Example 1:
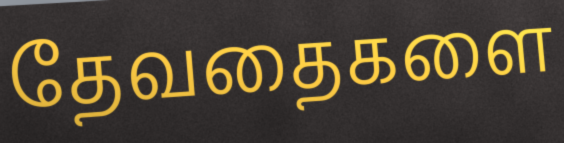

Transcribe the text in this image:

தேவதைகளை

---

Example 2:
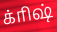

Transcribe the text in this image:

க்ரிஷ்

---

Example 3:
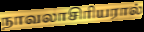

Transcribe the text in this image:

நாவலாசிரியரால்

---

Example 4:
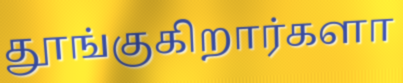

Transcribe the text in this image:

தூங்குகிறார்களா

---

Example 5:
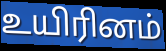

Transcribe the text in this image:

உயிரினம்